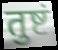
तुष्टं